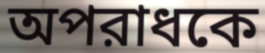
অপরাধকে